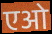
एओ